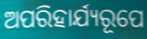
ଅପରିହାର୍ଯ୍ୟରୂପେ